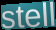
stell